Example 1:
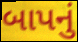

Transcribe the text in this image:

બાપનું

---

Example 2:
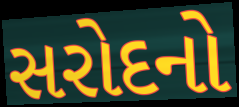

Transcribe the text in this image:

સરોદનો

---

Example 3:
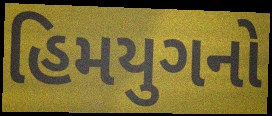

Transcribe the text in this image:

હિમયુગનો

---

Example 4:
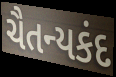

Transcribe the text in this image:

ચૈતન્યકંદ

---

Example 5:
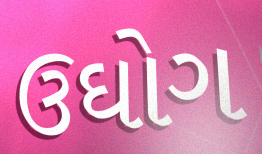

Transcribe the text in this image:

ઉઘોગ